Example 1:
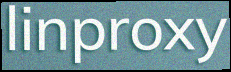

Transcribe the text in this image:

linproxy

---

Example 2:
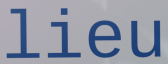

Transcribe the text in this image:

lieu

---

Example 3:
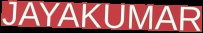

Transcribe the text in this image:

JAYAKUMAR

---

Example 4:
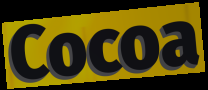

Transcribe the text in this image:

Cocoa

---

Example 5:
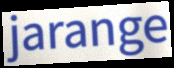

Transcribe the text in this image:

jarange